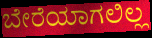
ಬೇರೆಯಾಗಲಿಲ್ಲ